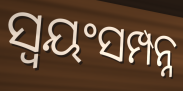
ସ୍ବୟଂସମ୍ପନ୍ନ